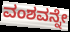
ವಂಶವನ್ನೇ